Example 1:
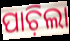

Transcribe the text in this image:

ପାଚ଼ିଲା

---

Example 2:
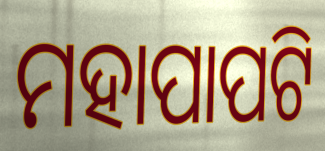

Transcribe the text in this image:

ମହାପାପଟି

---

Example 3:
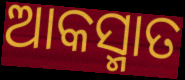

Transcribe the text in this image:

ଆକସ୍ମାତ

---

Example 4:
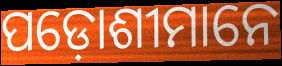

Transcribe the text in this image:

ପଡ଼ୋଶୀମାନେ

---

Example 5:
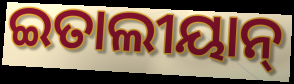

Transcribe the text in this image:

ଇତାଲୀୟାନ୍